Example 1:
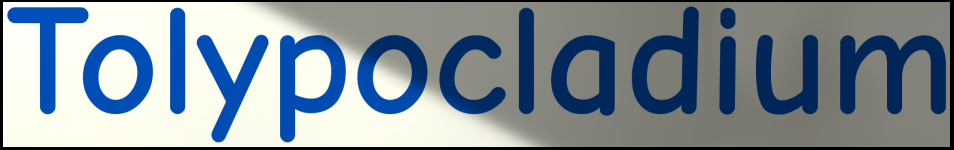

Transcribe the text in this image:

Tolypocladium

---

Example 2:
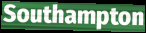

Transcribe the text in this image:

Southampton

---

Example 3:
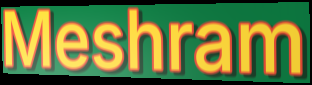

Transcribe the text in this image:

Meshram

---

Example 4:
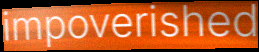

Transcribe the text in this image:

impoverished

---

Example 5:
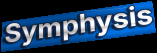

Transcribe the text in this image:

Symphysis